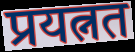
प्रयत्नत